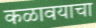
कळावयाचा